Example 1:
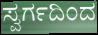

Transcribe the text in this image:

ಸ್ವರ್ಗದಿಂದ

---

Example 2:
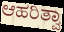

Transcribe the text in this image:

ಆಹರಿತ್ವಾ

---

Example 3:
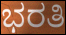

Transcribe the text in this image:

ಭರತಿ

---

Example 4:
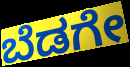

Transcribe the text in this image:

ಬೆಡಗೇ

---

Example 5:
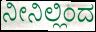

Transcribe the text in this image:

ನೀನಿಲ್ಲಿಂದ